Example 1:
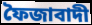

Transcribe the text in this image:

ফৈজাবাদী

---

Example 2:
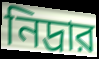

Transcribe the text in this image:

নিদ্রার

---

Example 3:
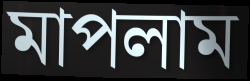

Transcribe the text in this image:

মাপলাম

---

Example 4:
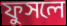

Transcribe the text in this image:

ফুসলে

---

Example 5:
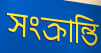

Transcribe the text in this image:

সংক্রান্তি